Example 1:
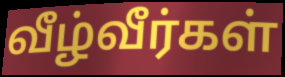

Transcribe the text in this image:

வீழ்வீர்கள்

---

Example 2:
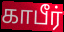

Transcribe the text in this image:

காபீர்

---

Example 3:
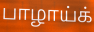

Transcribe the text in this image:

பாழாய்க்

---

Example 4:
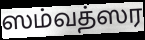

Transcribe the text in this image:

ஸம்வத்ஸர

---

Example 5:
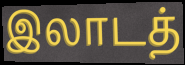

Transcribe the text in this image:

இலாடத்